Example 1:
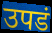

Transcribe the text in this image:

उपडं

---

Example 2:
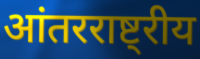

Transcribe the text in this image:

आंतरराष्ट्रीय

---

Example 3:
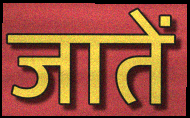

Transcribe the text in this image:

जातें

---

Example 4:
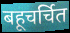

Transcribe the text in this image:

बहूचर्चित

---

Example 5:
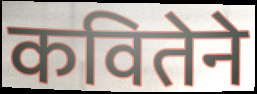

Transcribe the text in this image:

कवितेने